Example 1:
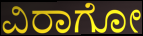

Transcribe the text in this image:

ವಿರಾಗೋ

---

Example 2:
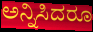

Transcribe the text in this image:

ಅನ್ನಿಸಿದರೂ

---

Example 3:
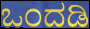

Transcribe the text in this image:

ಒಂದಡಿ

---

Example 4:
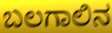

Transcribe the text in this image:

ಬಲಗಾಲಿನ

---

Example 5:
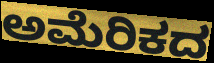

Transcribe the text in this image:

ಅಮೆರಿಕದ